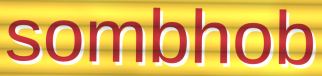
sombhob